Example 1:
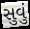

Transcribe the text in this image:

સુવું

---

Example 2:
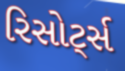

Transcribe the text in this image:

રિસોર્ટ્સ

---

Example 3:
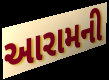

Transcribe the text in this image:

આરામની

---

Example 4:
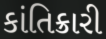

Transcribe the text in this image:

કાંતિક્રારી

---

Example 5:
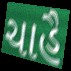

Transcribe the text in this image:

ચાહૈ